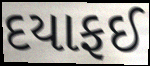
દયાફઈ